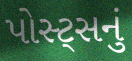
પોસ્ટ્સનું